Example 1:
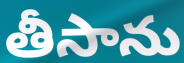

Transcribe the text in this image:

తీసాను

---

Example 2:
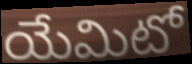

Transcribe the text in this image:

యేమిటో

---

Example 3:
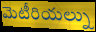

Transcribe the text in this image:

మెటీరియల్ను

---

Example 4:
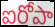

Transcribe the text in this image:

ఐరోపా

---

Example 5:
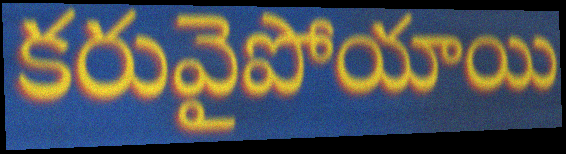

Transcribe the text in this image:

కరువైపోయాయి